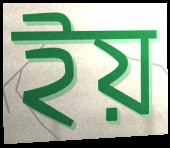
ইয়